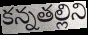
కన్నతల్లిని